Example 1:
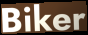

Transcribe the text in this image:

Biker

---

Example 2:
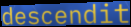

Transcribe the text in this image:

descendit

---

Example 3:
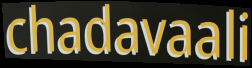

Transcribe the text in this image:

chadavaali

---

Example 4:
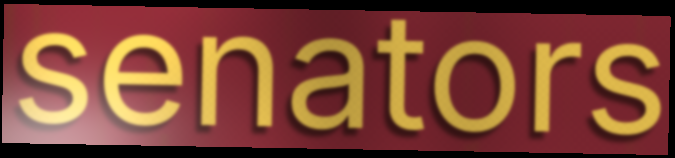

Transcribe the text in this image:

senators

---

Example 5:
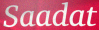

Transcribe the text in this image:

Saadat